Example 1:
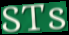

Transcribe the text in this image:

STs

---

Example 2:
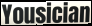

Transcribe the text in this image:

Yousician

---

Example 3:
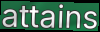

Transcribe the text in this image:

attains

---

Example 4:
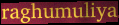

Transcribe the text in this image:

raghumuliya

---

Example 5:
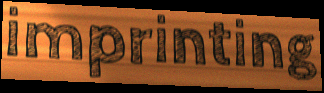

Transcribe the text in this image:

imprinting